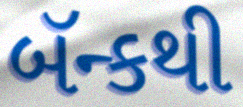
બૅન્કથી